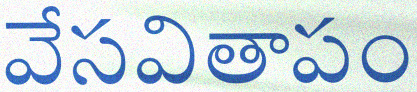
వేసవితాపం